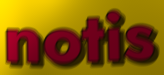
notis